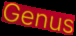
Genus